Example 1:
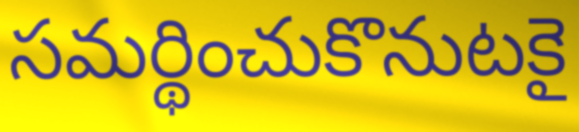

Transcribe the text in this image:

సమర్థించుకొనుటకై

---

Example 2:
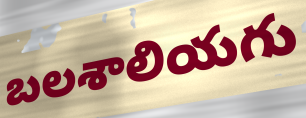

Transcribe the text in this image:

బలశాలియగు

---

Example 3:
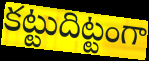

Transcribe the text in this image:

కట్టుదిట్టంగా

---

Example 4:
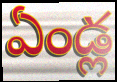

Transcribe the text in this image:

ఏండ్ల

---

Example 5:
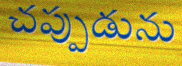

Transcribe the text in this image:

చప్పుడును